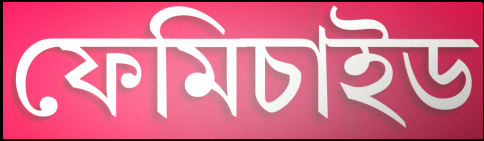
ফেমিচাইড